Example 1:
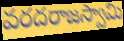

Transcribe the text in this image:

వరదరాజస్వామి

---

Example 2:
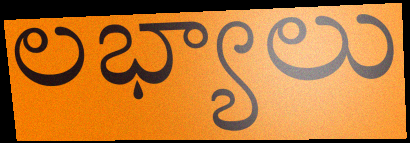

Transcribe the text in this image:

లభ్యాలు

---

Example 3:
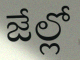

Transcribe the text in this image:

జేల్లో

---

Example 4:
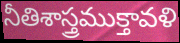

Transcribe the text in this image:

నీతిశాస్త్రముక్తావళి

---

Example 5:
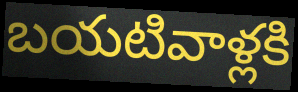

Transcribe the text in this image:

బయటివాళ్లకి